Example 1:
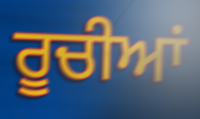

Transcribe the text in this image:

ਰੂਚੀਆਂ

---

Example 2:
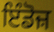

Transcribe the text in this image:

ਇੰਡੋਜ਼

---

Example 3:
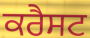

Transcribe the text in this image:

ਕਰੈਸਟ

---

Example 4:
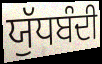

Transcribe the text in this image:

ਯੁੱਧਬੰਦੀ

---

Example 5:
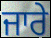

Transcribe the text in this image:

ਜਾਰੇ